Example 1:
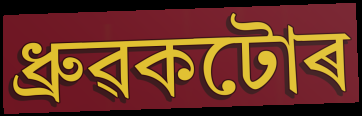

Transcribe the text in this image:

ধ্ৰুৱকটোৰ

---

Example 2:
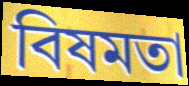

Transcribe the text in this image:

বিষমতা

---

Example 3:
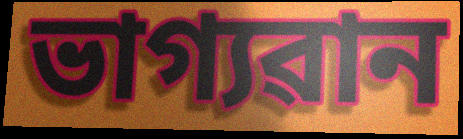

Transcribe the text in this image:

ভাগ্যৱান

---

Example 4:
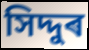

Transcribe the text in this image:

সিদ্দুৰ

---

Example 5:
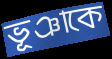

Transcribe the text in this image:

ভূঞাকে